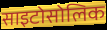
साइटोसोलिक